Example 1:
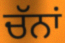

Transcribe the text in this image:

ਚੱਨਾਂ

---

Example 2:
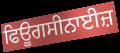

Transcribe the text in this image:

ਫਿਊਗਸੀਨਾਈਜ਼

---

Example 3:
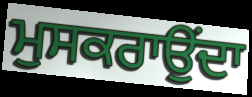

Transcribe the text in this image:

ਮੁਸਕਰਾਉਂਦਾ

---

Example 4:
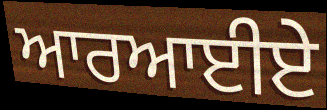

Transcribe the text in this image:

ਆਰਆਈਏ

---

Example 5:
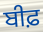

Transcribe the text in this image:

ਬੀਫ਼